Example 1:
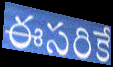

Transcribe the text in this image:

ఈసరికే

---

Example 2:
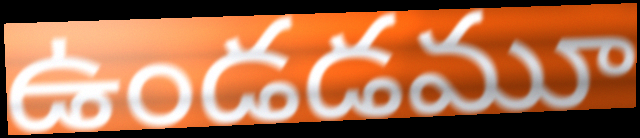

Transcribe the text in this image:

ఉండడమూ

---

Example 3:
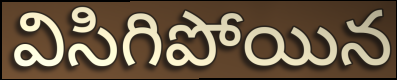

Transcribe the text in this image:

విసిగిపోయిన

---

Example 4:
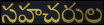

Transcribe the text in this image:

సహచరుల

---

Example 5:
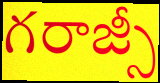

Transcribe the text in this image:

గరాజ్సీ